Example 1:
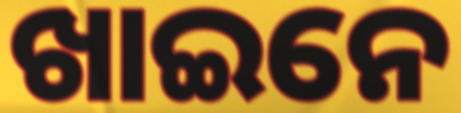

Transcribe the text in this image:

ଖାଇନେ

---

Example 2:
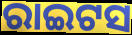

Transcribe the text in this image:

ରାଇଟସ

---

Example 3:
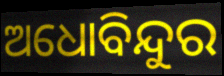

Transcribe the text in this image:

ଅଧୋବିନ୍ଦୁର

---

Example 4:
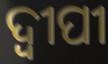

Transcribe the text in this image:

ଦ୍ଵୀପୀ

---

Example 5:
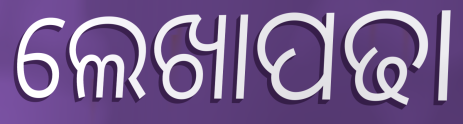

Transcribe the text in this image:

ଲେଖାପଢା